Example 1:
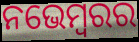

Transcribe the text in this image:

ନଭେମ୍ବରର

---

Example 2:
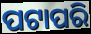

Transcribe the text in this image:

ପଟାପରି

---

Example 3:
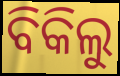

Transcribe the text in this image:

ବିକିଲୁ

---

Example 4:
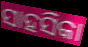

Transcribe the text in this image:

ସାହସିକା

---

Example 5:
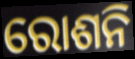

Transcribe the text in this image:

ରୋଶନି